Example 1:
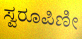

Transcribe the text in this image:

ಸ್ವರೂಪಿಣೀ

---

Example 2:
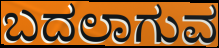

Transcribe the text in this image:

ಬದಲಾಗುವ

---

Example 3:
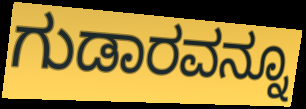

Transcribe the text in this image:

ಗುಡಾರವನ್ನೂ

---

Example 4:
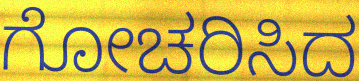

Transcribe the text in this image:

ಗೋಚರಿಸಿದ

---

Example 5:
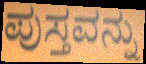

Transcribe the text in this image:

ಪುಸ್ತವನ್ನು